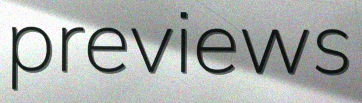
previews